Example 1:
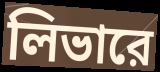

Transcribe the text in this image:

লিভারে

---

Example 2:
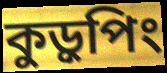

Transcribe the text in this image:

কুড়ুপিং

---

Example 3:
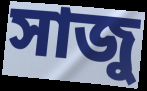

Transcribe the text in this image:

সাজু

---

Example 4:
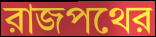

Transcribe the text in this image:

রাজপথের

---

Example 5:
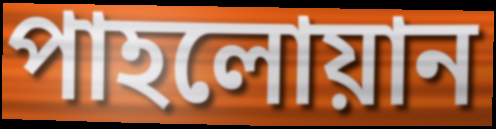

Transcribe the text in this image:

পাহলোয়ান